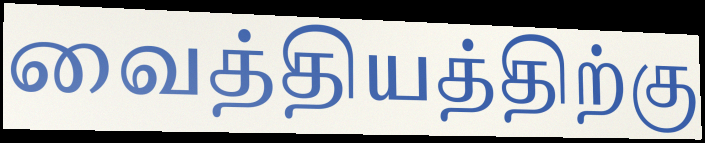
வைத்தியத்திற்கு